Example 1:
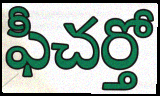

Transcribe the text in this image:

ఫీచర్తో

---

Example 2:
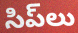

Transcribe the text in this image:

సిప్‌లు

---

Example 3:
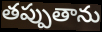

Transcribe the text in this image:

తప్పుతాను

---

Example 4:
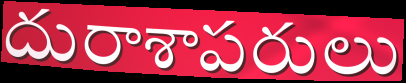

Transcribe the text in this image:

దురాశాపరులు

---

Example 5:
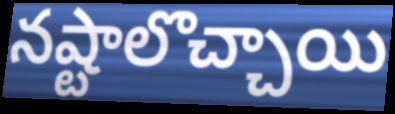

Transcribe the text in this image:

నష్టాలొచ్చాయి